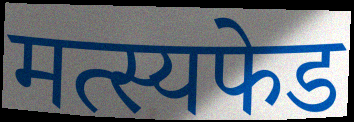
मत्स्यफेड